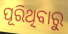
ପୂରିଥିବାରୁ